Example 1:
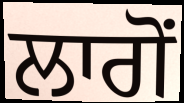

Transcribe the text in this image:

ਲਾਗੋਂ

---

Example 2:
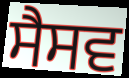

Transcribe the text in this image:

ਸੈਸਵ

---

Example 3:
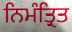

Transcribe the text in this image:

ਨਿਮੰਤ੍ਰਿਤ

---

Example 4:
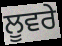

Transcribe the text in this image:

ਲੂਵਰੇ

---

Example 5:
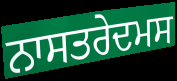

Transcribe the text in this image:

ਨਾਸਤਰੇਦਮਸ